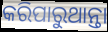
କରିପାରୁଥାନ୍ତା